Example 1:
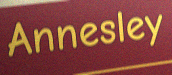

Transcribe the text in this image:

Annesley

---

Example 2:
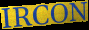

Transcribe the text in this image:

IRCON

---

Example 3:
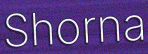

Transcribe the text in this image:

Shorna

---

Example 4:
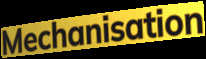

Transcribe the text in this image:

Mechanisation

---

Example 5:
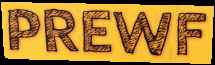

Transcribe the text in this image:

PREWF